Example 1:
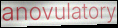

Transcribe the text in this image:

anovulatory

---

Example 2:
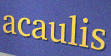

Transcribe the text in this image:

acaulis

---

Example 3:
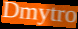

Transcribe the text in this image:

Dmytro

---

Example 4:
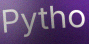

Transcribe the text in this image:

Pytho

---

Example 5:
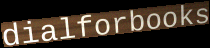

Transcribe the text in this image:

dialforbooks